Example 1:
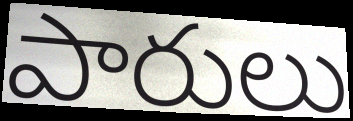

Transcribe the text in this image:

పారులు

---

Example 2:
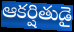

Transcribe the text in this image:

ఆకర్షితుడై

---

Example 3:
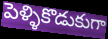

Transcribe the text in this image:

పెళ్ళికొడుకుగా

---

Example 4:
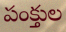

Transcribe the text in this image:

పంక్తుల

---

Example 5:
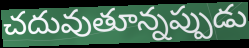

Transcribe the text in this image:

చదువుతూన్నప్పుడు